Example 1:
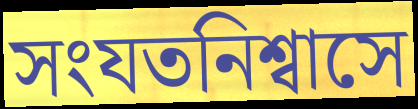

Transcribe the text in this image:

সংযতনিশ্বাসে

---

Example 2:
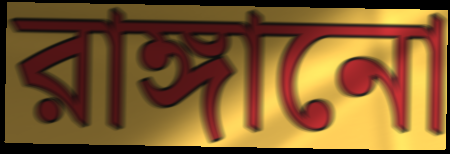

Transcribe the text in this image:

রাঙ্গানো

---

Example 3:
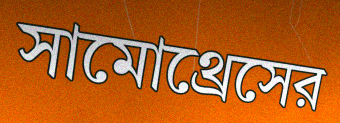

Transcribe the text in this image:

সামোথ্রেসের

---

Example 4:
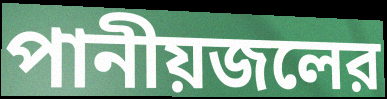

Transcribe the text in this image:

পানীয়জলের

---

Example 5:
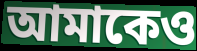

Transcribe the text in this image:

আমাকেও